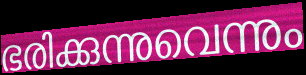
ഭരിക്കുന്നുവെന്നും